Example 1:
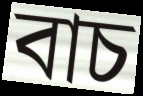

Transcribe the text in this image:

বাচ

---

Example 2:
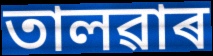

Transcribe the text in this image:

তালৱাৰ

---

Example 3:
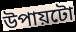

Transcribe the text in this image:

উপায়টো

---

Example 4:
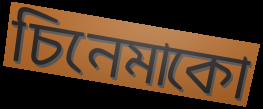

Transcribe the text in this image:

চিনেমাকো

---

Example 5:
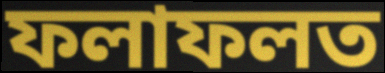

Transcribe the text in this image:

ফলাফলত